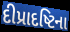
દીપ્રાદષ્ટિના